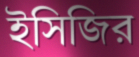
ইসিজির